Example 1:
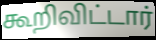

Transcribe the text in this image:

கூறிவிட்டார்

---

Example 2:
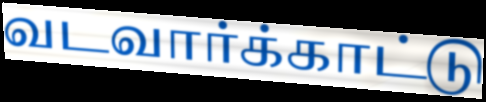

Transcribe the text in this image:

வடவார்க்காட்டு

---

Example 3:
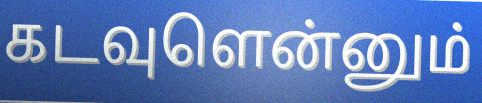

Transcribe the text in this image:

கடவுளென்னும்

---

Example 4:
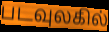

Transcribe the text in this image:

படவுலகில்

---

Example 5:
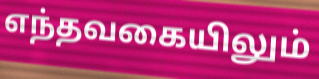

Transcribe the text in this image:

எந்தவகையிலும்